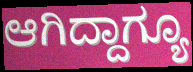
ಆಗಿದ್ದಾಗ್ಯೂ